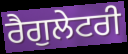
ਰੈਗੁਲੇਟਰੀ